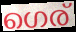
ഗെര്